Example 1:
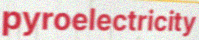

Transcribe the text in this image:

pyroelectricity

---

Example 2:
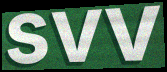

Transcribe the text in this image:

svv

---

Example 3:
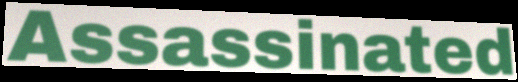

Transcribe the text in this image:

Assassinated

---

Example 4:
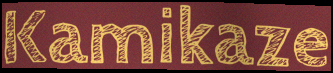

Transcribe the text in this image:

Kamikaze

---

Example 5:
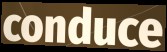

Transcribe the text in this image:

conduce